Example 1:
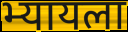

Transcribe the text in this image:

भ्यायला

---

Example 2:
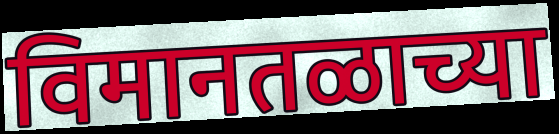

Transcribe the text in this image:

विमानतळाच्या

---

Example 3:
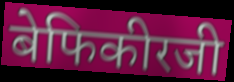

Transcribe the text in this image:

बेफिकीरजी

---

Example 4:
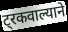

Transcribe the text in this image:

ट्रकवाल्याने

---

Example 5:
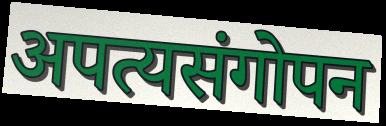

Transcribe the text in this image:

अपत्यसंगोपन